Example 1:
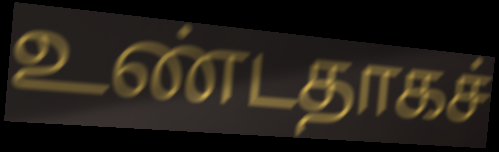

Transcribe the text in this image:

உண்டதாகச்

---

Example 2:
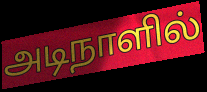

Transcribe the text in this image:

அடிநாளில்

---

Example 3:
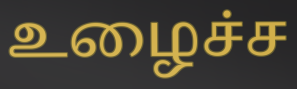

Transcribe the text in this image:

உழைச்ச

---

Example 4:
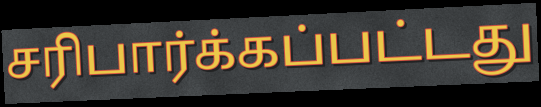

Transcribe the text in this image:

சரிபார்க்கப்பட்டது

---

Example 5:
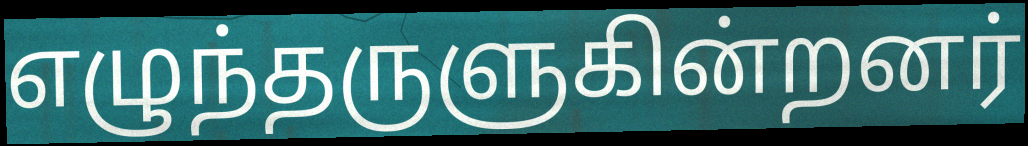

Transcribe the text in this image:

எழுந்தருளுகின்றனர்